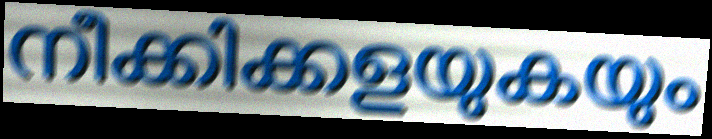
നീക്കിക്കളയുകയും